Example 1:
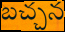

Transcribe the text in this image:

బచ్చన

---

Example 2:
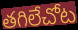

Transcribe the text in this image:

తగిలేచోట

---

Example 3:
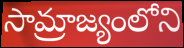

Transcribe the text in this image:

సామ్రాజ్యంలోని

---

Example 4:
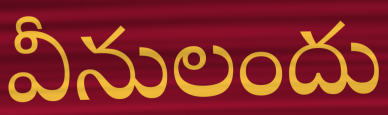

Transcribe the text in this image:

వీనులందు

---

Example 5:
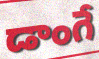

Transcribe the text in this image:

డాంగే